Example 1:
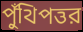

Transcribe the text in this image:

পুঁথিপত্তর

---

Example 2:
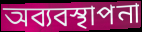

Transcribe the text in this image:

অব্যবস্থাপনা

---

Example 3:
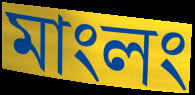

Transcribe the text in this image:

মাংলং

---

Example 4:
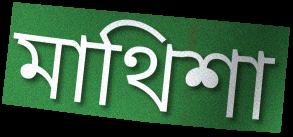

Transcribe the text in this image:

মাথিশা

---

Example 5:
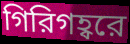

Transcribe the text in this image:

গিরিগহ্বরে